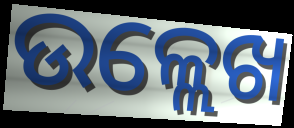
ଉଳ୍ଲେଖ